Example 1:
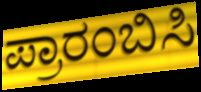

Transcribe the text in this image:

ಪ್ರಾರಂಬಿಸಿ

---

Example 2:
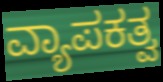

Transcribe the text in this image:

ವ್ಯಾಪಕತ್ವ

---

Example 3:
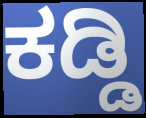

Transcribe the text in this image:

ಕಡ್ಡಿ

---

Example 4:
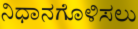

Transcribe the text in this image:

ನಿಧಾನಗೊಳಿಸಲು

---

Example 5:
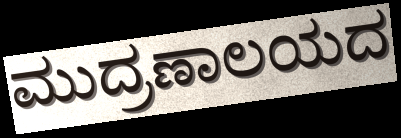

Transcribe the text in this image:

ಮುದ್ರಣಾಲಯದ